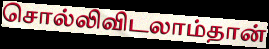
சொல்லிவிடலாம்தான்